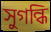
সুগন্ধি